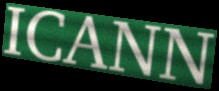
ICANN